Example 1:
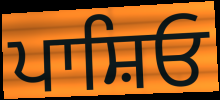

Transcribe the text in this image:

ਪਾਸ਼ਿਓ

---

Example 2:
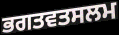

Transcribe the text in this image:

ਭਗਤਵਤਸਲਮ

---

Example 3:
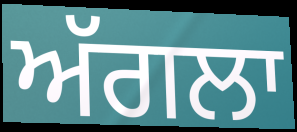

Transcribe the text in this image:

ਅੱਗਲਾ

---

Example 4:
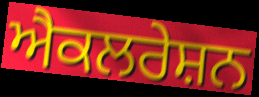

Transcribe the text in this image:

ਐਕਲਰੇਸ਼ਨ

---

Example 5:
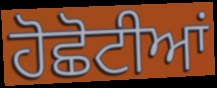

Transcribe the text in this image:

ਹੋਛੋਟੀਆਂ